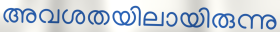
അവശതയിലായിരുന്നു